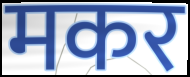
मकर